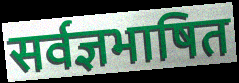
सर्वज्ञभाषित